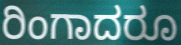
ರಿಂಗಾದರೂ